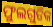
ଫୁଲଗୁଡିକ